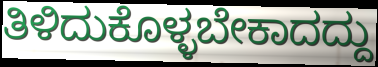
ತಿಳಿದುಕೊಳ್ಳಬೇಕಾದದ್ದು